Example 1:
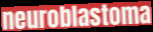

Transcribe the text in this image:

neuroblastoma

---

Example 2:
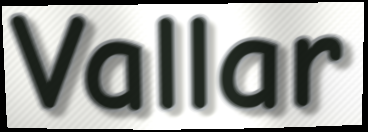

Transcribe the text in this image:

Vallar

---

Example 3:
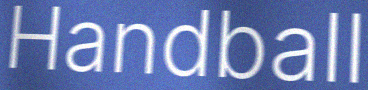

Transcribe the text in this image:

Handball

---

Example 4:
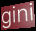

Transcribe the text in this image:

gini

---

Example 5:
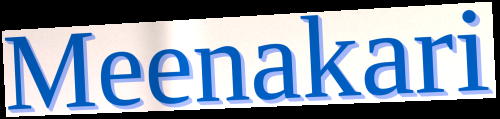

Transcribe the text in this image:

Meenakari